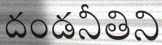
దండనీతిని